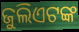
ଜୁଲିଏଟଙ୍କ